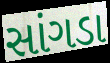
સાંગડા